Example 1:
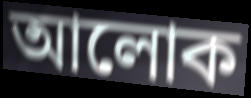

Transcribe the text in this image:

আলোক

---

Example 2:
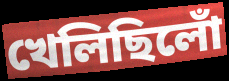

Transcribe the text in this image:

খেলিছিলোঁ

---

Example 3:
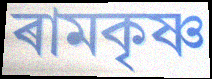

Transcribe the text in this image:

ৰামকৃষ্ণ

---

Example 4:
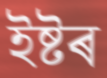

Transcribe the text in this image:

ইষ্টৰ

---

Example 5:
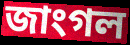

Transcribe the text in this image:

জাংগল